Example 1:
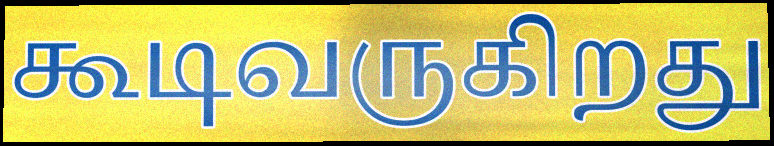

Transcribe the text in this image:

கூடிவருகிறது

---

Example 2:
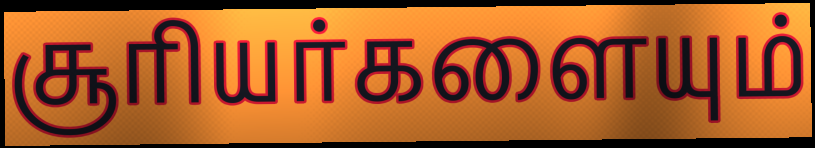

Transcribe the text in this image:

சூரியர்களையும்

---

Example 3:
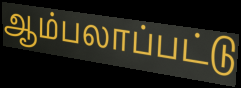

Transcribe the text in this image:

ஆம்பலாப்பட்டு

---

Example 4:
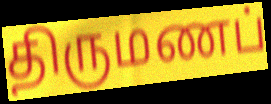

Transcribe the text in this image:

திருமணப்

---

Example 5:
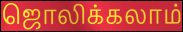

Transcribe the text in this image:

ஜொலிக்கலாம்